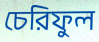
চেরিফুল